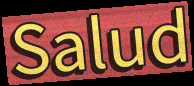
Salud